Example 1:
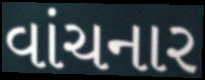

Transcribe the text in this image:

વાંચનાર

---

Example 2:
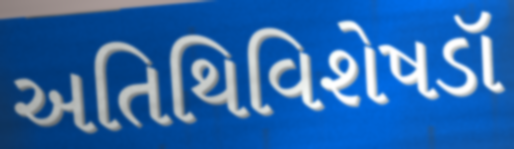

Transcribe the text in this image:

અતિથિવિશેષડૉ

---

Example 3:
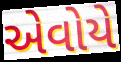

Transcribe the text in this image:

એવોયે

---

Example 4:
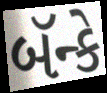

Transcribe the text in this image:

બૅન્કે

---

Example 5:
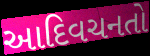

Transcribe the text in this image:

આદિવચનતો